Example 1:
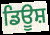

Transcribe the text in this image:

ਡਿਊਸ਼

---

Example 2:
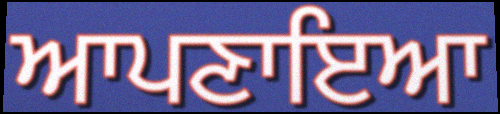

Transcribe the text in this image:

ਆਪਣਾਇਆ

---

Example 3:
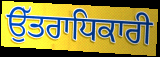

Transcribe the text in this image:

ਉੱਤਰਾਧਿਕਾਰੀ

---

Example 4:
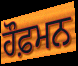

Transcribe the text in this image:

ਹੌਫ਼ਮਨ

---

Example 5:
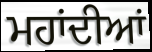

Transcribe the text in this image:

ਮਹਾਂਦੀਆਂ